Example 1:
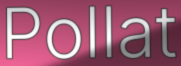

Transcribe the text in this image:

Pollat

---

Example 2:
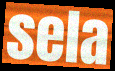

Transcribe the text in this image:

sela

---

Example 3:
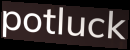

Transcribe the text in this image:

potluck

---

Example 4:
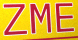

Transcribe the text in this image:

ZME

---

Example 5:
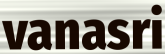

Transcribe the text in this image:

vanasri